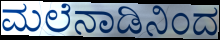
ಮಲೆನಾಡಿನಿಂದ